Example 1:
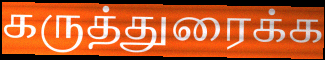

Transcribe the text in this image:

கருத்துரைக்க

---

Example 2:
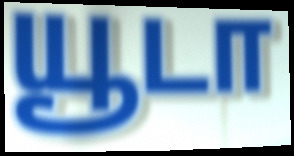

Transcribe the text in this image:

யூடா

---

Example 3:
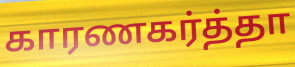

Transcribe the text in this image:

காரணகர்த்தா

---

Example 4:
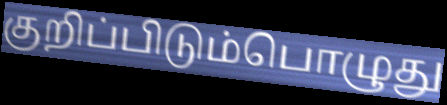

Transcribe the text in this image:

குறிப்பிடும்பொழுது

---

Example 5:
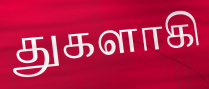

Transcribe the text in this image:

துகளாகி